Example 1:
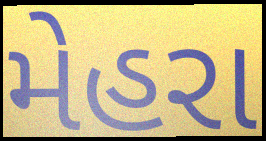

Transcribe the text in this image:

મેહરા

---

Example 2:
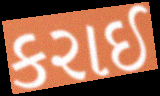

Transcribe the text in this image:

કરાઈ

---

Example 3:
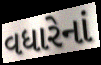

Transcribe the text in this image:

વધારેનાં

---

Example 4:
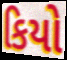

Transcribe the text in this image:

કિયો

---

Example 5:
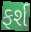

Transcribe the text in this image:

ફર્શ